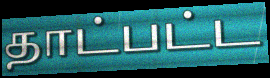
தாட்பட்ட